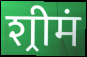
श्रीमं